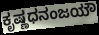
ಕೃಷ್ಣಧನಂಜಯೌ